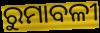
ରୁମାବଳୀ